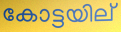
കോട്ടയില്